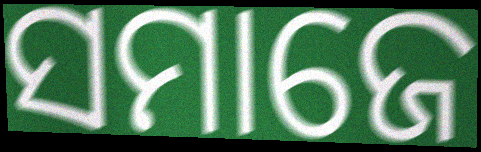
ସମାଜେ